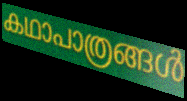
കഥാപാത്രങ്ങൾ